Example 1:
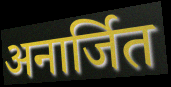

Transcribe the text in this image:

अनार्जित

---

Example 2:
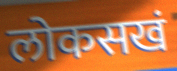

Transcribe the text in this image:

लोकसखं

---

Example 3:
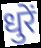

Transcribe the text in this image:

धुरें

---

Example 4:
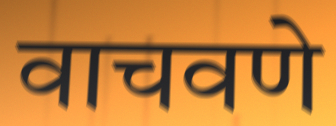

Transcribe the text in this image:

वाचवणे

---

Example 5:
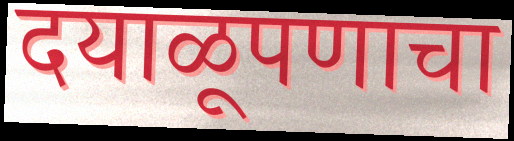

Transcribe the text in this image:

दयाळूपणाचा